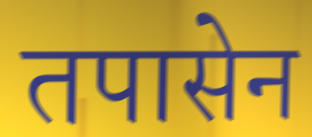
तपासेन